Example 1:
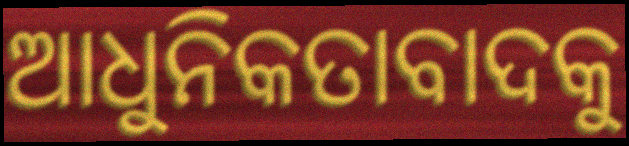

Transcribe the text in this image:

ଆଧୁନିକତାବାଦକୁ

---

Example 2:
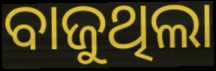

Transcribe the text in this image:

ବାଜୁଥିଲା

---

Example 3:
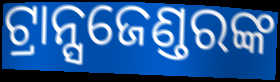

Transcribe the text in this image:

ଟ୍ରାନ୍ସଜେଣ୍ଡରଙ୍କ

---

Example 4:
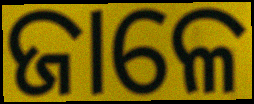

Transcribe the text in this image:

ଜାଳେ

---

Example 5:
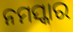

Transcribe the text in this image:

ନମସ୍କାର